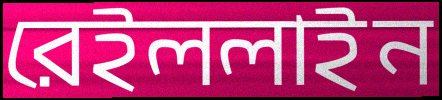
রেইললাইন